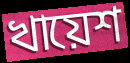
খায়েশ